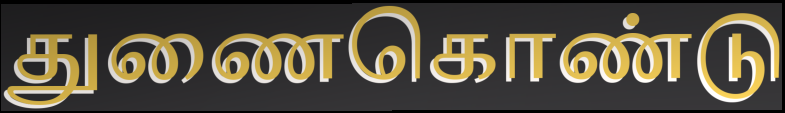
துணைகொண்டு